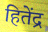
हितेंद्र